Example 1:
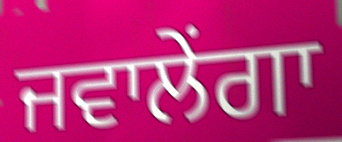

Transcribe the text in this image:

ਜਵਾਲੇਂਗਾ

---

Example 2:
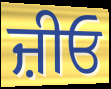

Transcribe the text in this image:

ਜ਼ੀਓ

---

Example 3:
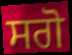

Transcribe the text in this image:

ਸਗੋ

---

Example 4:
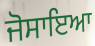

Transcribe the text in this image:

ਜੋਸਾਇਆ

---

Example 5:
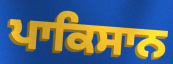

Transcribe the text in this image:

ਪਾਕਿਸਾਨ